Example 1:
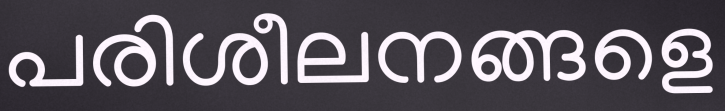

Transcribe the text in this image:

പരിശീലനങ്ങളെ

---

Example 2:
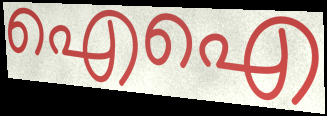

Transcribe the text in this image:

ഐഐ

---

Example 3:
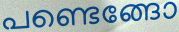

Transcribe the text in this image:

പണ്ടെങ്ങോ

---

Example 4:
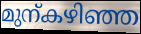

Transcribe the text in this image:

മുന്കഴിഞ്ഞ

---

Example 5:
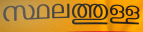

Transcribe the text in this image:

സ്ഥലത്തുള്ള